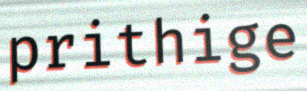
prithige